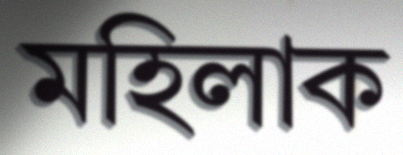
মহিলাক